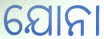
ଯୋନା